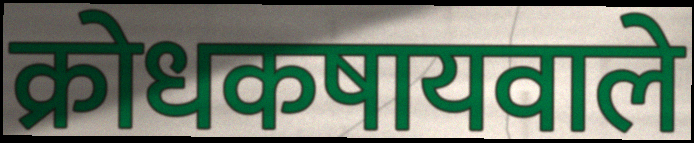
क्रोधकषायवाले